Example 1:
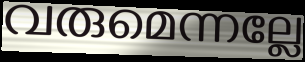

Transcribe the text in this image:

വരുമെന്നല്ലേ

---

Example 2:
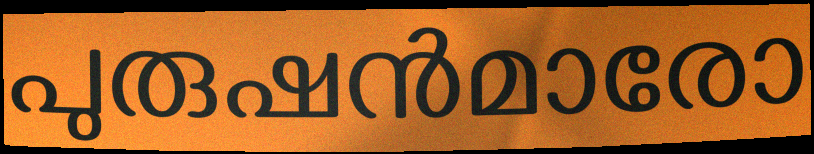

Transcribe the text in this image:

പുരുഷൻമാരോ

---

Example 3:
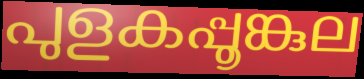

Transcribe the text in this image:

പുളകപ്പൂങ്കുല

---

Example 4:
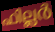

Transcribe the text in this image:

ഫില്ലർ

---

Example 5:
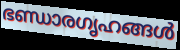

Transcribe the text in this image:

ഭണ്ഡാരഗൃഹങ്ങൾ